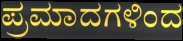
ಪ್ರಮಾದಗಳಿಂದ